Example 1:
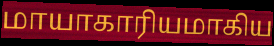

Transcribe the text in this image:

மாயாகாரியமாகிய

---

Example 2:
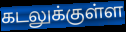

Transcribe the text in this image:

கடலுக்குள்ள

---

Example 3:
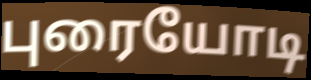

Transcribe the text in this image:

புரையோடி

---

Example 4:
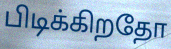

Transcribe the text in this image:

பிடிக்கிறதோ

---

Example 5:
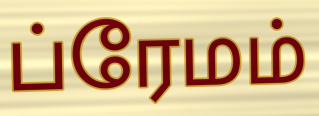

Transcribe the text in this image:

ப்ரேமம்